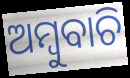
ଅମ୍ବୁବାଚି